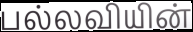
பல்லவியின்